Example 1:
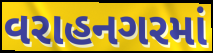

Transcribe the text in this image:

વરાહનગરમાં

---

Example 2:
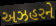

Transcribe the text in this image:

અઝહરને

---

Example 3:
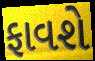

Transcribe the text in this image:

ફાવશે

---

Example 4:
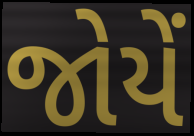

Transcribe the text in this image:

જોયેં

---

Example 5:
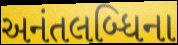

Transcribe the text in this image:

અનંતલબ્ધિના